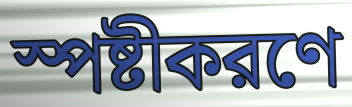
স্পষ্টীকরণে